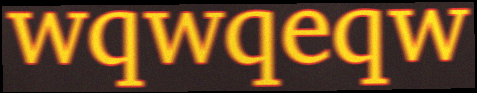
wqwqeqw